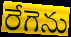
రేగెను